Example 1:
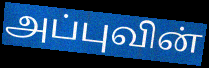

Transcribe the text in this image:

அப்புவின்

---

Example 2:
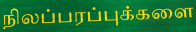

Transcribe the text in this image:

நிலப்பரப்புக்களை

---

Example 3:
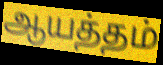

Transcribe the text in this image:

ஆயத்தம்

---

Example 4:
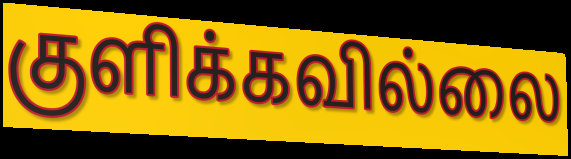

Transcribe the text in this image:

குளிக்கவில்லை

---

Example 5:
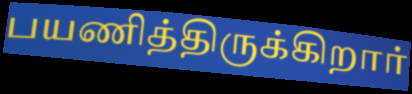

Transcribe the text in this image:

பயணித்திருக்கிறார்